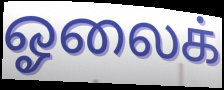
ஓலைக்